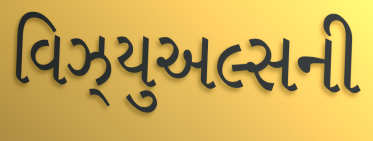
વિઝ્યુઅલ્સની